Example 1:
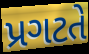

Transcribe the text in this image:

પ્રગટતે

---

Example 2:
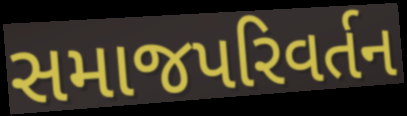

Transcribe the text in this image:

સમાજપરિવર્તન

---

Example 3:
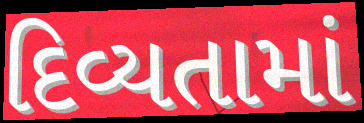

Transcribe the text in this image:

દિવ્યતામાં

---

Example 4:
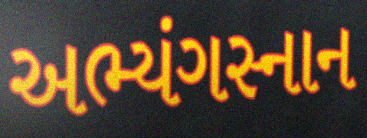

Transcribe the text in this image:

અભ્યંગસ્નાન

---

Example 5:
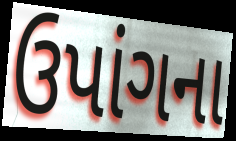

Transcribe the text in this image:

ઉપાંગના